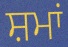
ਸ਼ਮਾਂ